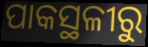
ପାକସ୍ଥଳୀରୁ